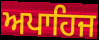
ਅਪਾਹਿਜ